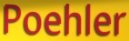
Poehler